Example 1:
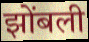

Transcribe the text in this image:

झोंबली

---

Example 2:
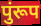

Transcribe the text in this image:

पुंरूप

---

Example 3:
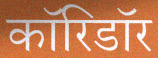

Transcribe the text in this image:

कॉरिडॉर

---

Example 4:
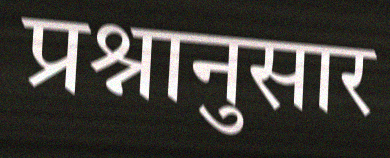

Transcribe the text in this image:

प्रश्नानुसार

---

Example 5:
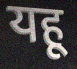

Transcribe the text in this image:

यहू